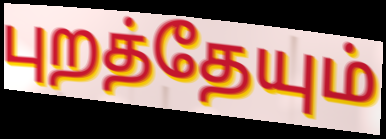
புறத்தேயும்